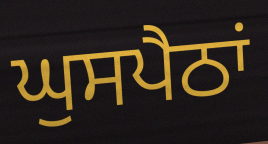
ਘੁਸਪੈਠਾਂ